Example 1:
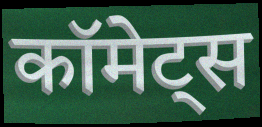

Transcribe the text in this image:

कॉमेट्स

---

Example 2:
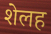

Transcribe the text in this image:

शेलह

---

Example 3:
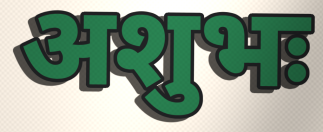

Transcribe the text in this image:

अशुभः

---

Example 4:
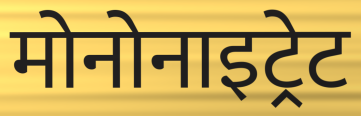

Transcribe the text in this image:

मोनोनाइट्रेट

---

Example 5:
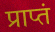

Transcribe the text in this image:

प्राप्तं